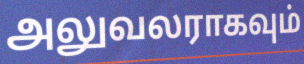
அலுவலராகவும்